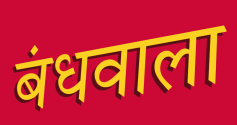
बंधवाला